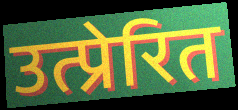
उत्प्रेरित